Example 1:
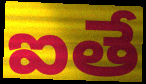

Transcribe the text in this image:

ఐతే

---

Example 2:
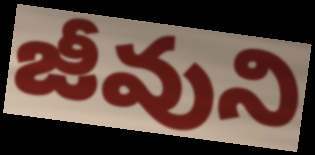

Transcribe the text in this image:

జీవుని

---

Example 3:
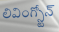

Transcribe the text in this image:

లివింగ్స్టోన్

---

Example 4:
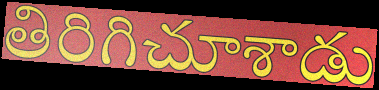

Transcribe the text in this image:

తిరిగిచూశాడు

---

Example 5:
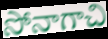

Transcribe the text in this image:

సోనాగాచి